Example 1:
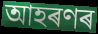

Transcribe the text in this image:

আহৰণৰ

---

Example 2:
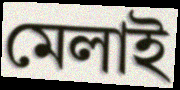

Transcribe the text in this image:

মেলাই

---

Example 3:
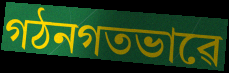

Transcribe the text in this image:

গঠনগতভাৱে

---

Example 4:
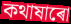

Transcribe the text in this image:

কথাষাৰো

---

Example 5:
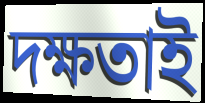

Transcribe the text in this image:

দক্ষতাই